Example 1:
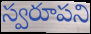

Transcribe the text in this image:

స్వరూపని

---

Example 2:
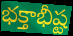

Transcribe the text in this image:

భక్తాభీష్ట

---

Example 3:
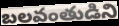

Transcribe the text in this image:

బలవంతుడిని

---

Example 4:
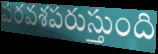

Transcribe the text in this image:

పరవశపరుస్తుంది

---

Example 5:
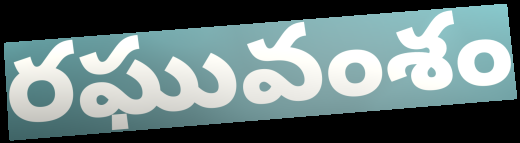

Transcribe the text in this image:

రఘువంశం